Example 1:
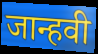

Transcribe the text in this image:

जान्हवी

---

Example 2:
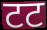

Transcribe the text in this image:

टट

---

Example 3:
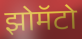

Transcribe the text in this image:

झोमॅटो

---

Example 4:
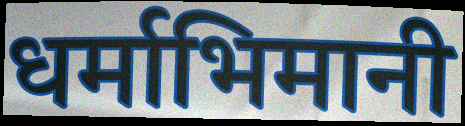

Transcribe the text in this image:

धर्माभिमानी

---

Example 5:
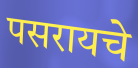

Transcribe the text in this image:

पसरायचे